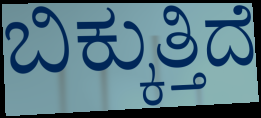
ಬಿಕ್ಕುತ್ತಿದೆ